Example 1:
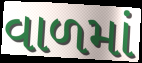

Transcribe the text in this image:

વાળમાં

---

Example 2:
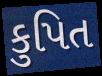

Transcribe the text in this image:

કુપિત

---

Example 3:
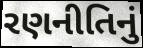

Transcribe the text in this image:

રણનીતિનું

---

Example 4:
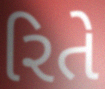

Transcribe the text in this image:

રિતે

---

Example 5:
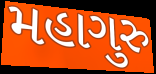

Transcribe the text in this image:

મહાગુરુ